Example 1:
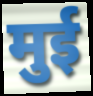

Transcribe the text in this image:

मुई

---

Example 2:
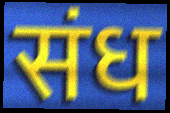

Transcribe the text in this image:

संध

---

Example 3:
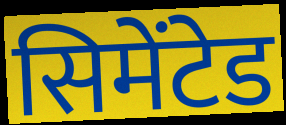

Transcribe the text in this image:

सिमेंटेड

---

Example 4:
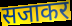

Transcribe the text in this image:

सजाकर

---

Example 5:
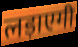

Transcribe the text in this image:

लड़ाएगी